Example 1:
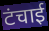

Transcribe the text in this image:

टंचाई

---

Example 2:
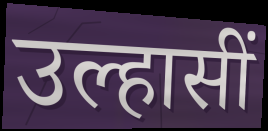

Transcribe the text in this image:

उल्हासीं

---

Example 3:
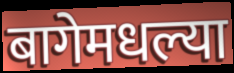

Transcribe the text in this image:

बागेमधल्या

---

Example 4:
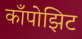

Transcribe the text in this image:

काँपोझिट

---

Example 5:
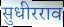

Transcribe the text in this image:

सुधीरराव